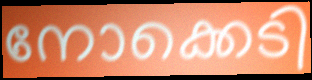
നോക്കെടി